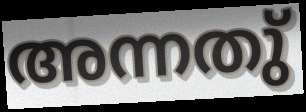
അന്നതു്